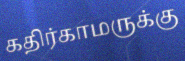
கதிர்காமருக்கு